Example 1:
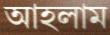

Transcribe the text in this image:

আহলাম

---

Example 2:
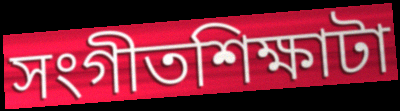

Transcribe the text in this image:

সংগীতশিক্ষাটা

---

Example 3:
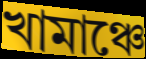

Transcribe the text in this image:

খামাঞ্চে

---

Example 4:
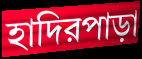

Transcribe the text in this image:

হাদিরপাড়া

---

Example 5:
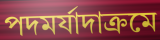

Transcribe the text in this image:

পদমর্যাদাক্রমে